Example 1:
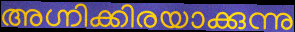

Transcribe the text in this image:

അഗ്നിക്കിരയാക്കുന്നു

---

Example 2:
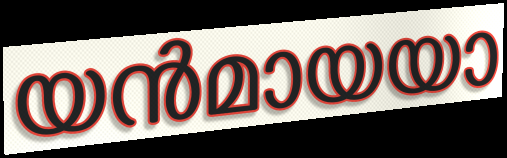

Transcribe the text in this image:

യൻമായയാ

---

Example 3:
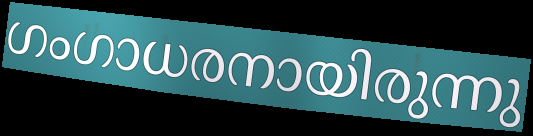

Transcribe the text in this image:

ഗംഗാധരനായിരുന്നു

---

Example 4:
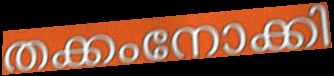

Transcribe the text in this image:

തക്കംനോക്കി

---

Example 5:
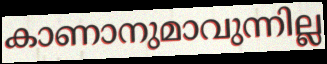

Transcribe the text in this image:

കാണാനുമാവുന്നില്ല